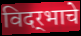
विदर्भाचे